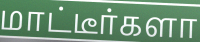
மாட்டீர்களா